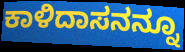
ಕಾಳಿದಾಸನನ್ನೂ